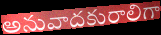
అనువాదకురాలిగా